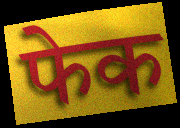
फेक